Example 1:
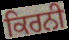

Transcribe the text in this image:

ਕਿਰਨੀ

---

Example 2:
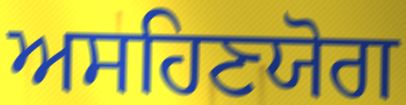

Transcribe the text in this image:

ਅਸਹਿਣਯੋਗ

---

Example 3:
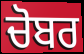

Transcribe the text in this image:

ਚੋਬਰ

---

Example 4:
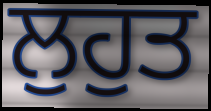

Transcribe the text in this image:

ਲੁਹੁਤ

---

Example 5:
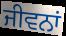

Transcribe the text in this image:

ਜੀਵਨਾਂ